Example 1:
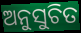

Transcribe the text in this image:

ଅନୁସୁଚିତ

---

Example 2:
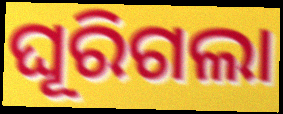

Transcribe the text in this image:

ଘୂରିଗଲା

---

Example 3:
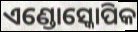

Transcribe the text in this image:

ଏଣ୍ଡୋସ୍କୋପିକ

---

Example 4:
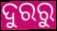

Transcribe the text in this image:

ଦୁରରୁ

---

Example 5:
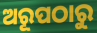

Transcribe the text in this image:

ଅରୂପଠାରୁ